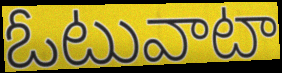
ఓటువాటా